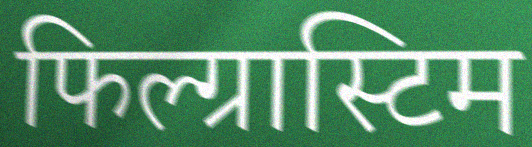
फिल्ग्रास्टिम